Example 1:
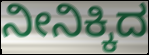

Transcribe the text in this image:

ನೀನಿಕ್ಕಿದ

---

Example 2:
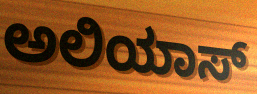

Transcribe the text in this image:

ಅಲಿಯಾಸ್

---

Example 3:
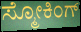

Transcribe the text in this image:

ಸ್ಮೋಕಿಂಗ್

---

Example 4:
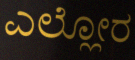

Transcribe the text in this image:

ಎಲ್ಲೋರ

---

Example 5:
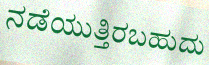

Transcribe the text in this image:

ನಡೆಯುತ್ತಿರಬಹುದು